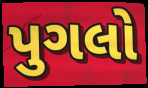
પુગલો